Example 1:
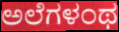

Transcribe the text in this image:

ಅಲೆಗಳಂಥ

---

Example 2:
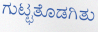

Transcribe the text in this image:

ಗುಟ್ಟತೊಡಗಿತು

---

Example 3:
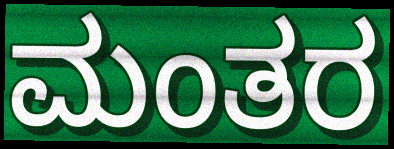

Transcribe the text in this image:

ಮಂತರ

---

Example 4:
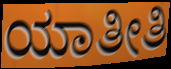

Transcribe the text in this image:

ಯಾತೀತಿ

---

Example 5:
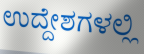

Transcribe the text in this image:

ಉದ್ದೇಶಗಳಲ್ಲಿ